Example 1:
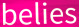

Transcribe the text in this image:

belies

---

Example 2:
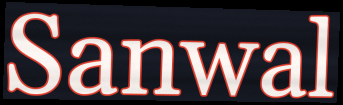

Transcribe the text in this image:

Sanwal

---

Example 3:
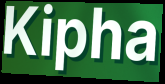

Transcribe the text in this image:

Kipha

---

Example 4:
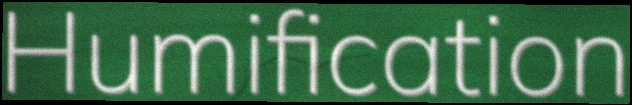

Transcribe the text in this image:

Humification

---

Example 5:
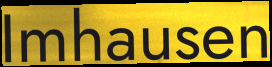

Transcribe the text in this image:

Imhausen